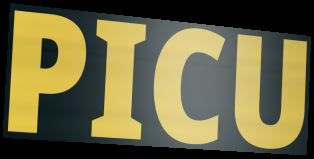
PICU